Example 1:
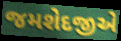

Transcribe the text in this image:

જમશેદજીએ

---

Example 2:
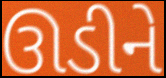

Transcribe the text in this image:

ઊડીને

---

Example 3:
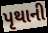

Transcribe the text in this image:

પૃથાની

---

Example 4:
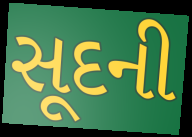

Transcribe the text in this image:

સૂદની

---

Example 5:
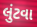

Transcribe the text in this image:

લુંટવા